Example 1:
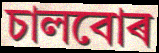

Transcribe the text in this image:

চালবোৰ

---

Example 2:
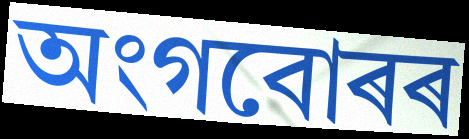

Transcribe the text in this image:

অংগবোৰৰ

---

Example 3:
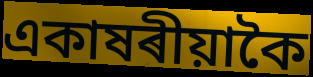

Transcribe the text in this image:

একাষৰীয়াকৈ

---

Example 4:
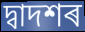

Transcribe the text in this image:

দ্বাদশৰ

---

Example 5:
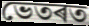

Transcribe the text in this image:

ভেতৰত